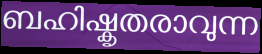
ബഹിഷ്കൃതരാവുന്ന